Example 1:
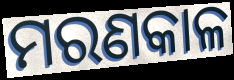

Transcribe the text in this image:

ମରଣକାଳ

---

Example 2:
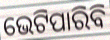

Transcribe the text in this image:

ଭେଟିପାରିବି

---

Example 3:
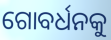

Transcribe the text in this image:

ଗୋବର୍ଧନକୁ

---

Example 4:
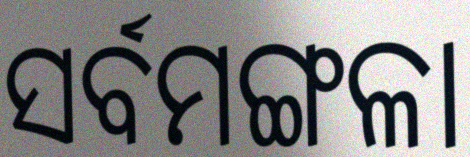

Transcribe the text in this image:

ସର୍ବମଙ୍ଗଳା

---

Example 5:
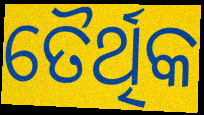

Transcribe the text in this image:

ତୈର୍ଥିକ